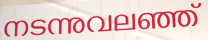
നടന്നുവലഞ്ഞ്